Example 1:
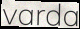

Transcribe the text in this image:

varda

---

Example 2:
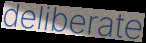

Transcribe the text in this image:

deliberate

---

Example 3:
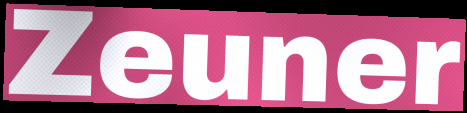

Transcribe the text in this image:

Zeuner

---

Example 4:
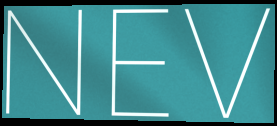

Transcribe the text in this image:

NEV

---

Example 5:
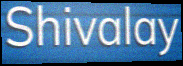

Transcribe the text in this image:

Shivalay